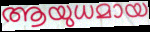
ആയുധമായ